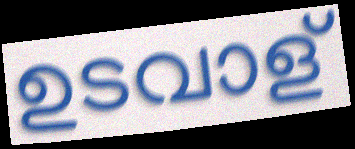
ഉടവാള്